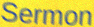
Sermon